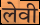
लेवी